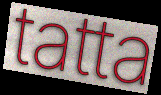
tatta